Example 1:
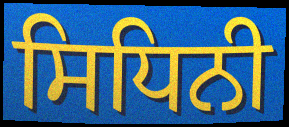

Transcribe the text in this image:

ਸਿਧਿਨੀ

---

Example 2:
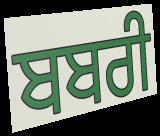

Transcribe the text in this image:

ਬਬਰੀ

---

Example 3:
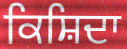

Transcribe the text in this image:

ਕਿਸ਼ਿਦਾ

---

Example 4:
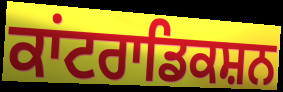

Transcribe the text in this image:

ਕਾਂਟਰਾਡਿਕਸ਼ਨ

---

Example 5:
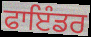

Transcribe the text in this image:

ਫਾਇੰਡਰ